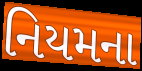
નિયમના